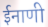
ईनाणी